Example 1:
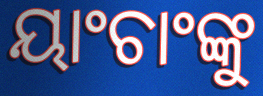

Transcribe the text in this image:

ୟାଂଚାଂଙ୍କୁ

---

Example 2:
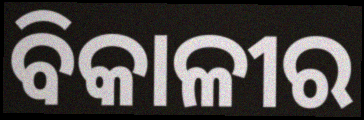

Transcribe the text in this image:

ବିକାଳୀର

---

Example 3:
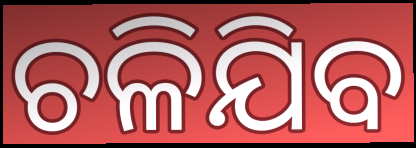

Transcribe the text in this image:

ଚଳିଯିବ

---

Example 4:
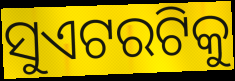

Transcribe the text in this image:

ସୁଏଟରଟିକୁ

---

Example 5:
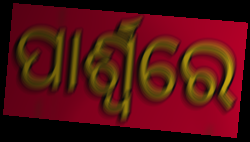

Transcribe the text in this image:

ପାର୍ଶ୍ଵରେ